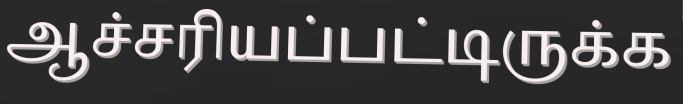
ஆச்சரியப்பட்டிருக்க